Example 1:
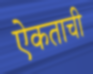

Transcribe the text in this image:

ऐकताची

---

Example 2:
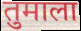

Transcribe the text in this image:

तुमाला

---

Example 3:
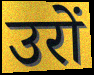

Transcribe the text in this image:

उरों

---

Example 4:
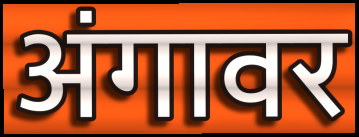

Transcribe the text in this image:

अंगावर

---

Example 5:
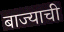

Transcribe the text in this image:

बाज्याची